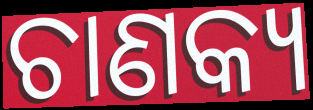
ଚାଣକ୍ଯ